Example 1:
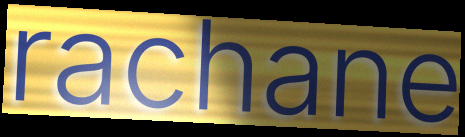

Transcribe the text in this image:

rachane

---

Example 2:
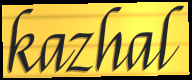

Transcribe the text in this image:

kazhal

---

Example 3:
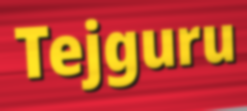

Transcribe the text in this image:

Tejguru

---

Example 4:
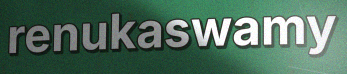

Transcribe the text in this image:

renukaswamy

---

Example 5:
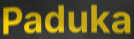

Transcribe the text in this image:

Paduka